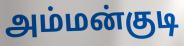
அம்மன்குடி